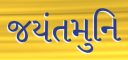
જયંતમુનિ